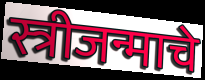
स्त्रीजन्माचे